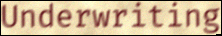
Underwriting